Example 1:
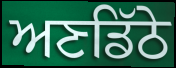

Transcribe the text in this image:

ਅਣਡਿੱਠੇ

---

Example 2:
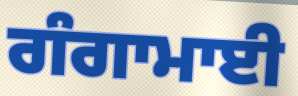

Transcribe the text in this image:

ਗੰਗਾਮਾਈ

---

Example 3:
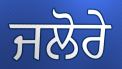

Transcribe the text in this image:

ਜਲੋਰੇ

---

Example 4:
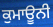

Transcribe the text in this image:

ਕੁਮਾਊਨੀ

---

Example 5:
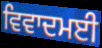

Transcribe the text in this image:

ਵਿਵਾਦਮਈ